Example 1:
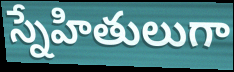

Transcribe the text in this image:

స్నేహితులుగా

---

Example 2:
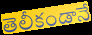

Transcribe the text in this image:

తెలీకండానే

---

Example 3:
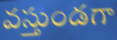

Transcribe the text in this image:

వస్తుండగా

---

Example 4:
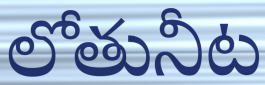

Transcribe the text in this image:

లోతునీట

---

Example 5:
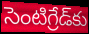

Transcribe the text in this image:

సెంటిగ్రేడ్‌కు